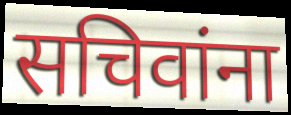
सचिवांना